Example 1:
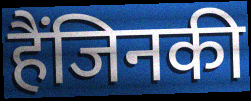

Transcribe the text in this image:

हैंजिनकी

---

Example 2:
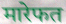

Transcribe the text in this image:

मारेफत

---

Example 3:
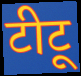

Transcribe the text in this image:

टीटू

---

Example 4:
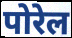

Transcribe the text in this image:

पोरेल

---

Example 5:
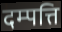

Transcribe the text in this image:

दम्पत्ति